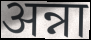
अन्ना